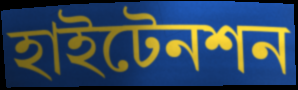
হাইটেনশন